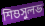
শিশুসুলভ